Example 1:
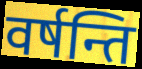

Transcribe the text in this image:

वर्षन्ति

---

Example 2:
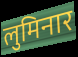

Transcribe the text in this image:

लुमिनार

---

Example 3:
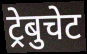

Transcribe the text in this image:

ट्रेबुचेट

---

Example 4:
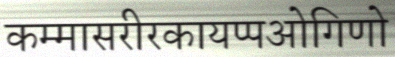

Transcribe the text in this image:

कम्मासरीरकायप्पओगिणो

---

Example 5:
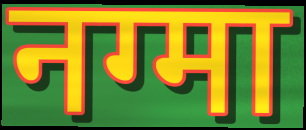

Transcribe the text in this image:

नग्मा